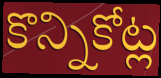
కొన్నికోట్ల